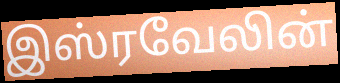
இஸ்ரவேலின்